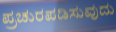
ಪ್ರಚುರಪಡಿಸುವುದು